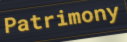
Patrimony